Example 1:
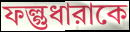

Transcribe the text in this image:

ফল্গুধারাকে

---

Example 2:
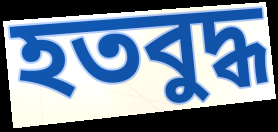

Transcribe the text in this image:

হতবুদ্ধ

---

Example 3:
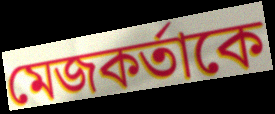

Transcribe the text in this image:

মেজকর্তাকে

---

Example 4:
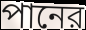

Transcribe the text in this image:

পানের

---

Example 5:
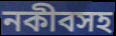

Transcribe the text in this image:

নকীবসহ